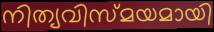
നിത്യവിസ്മയമായി